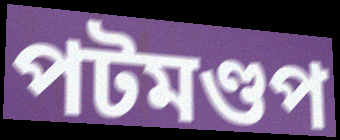
পটমণ্ডপ